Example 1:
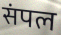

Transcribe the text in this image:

संपल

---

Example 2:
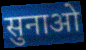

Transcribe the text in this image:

सुनाओ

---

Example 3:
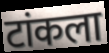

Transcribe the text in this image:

टांकला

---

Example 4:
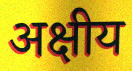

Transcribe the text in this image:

अक्षीय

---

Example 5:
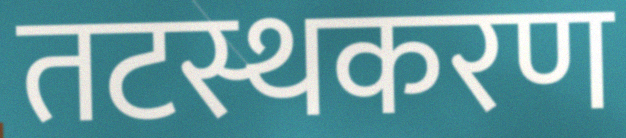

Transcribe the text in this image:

तटस्थकरण